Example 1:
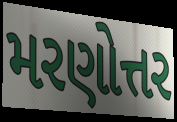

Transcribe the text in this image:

મરણોત્તર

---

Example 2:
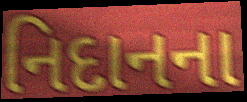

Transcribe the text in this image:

નિદાનના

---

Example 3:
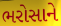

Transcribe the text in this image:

ભરોસાને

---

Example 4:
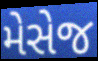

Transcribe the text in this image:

મેસેજ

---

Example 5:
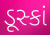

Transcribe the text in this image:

ડૂસ્કાં